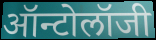
ऑन्टोलॉजी